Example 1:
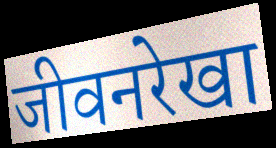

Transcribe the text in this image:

जीवनरेखा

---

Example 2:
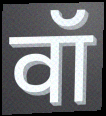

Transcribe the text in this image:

वॉ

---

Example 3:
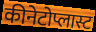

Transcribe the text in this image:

कीनेटोप्लास्ट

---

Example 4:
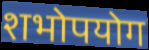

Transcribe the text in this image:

शभोपयोग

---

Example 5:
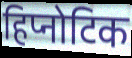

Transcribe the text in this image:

हिप्नोटिक